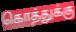
கொத்துக்கு